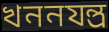
খননযন্ত্র